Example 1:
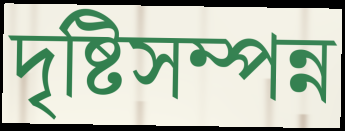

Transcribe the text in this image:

দৃষ্টিসম্পন্ন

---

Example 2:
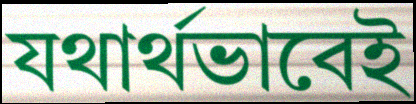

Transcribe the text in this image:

যথার্থভাবেই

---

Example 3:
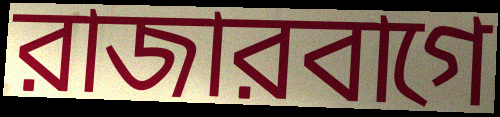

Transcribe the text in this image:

রাজারবাগে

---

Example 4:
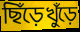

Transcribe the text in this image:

ছিঁড়েখুঁড়ে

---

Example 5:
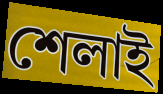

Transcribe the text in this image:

শেলাই